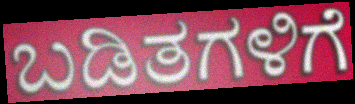
ಬಡಿತಗಳಿಗೆ